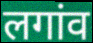
लगांव